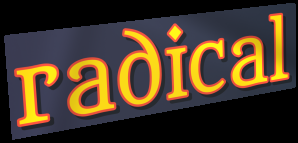
radical